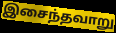
இசைந்தவாறு